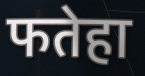
फतेहा